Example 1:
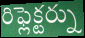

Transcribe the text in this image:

రిఫ్లెక్టర్ను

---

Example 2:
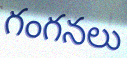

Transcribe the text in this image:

గంగనలు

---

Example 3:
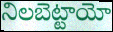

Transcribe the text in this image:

నిలబెట్టాయో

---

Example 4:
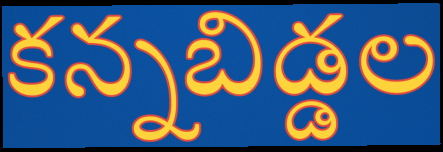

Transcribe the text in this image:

కన్నబిడ్డల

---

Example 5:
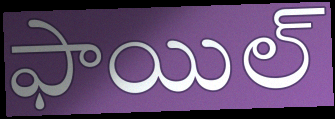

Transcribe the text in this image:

ఫాయిల్